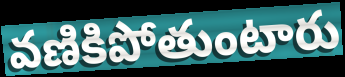
వణికిపోతుంటారు